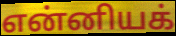
என்னியக்